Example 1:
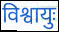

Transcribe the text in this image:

विश्वायुः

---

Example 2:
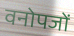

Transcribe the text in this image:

वनोपजों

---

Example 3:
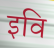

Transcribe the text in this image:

इवि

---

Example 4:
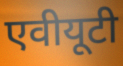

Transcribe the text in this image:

एवीयूटी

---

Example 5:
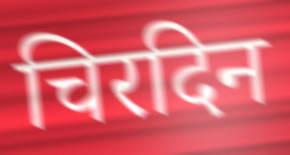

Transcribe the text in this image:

चिरदिन